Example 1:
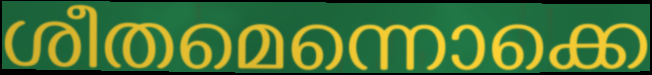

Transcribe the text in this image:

ശീതമെന്നൊക്കെ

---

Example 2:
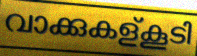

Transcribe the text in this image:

വാക്കുകള്കൂടി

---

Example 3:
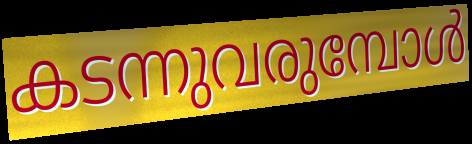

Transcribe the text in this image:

കടന്നുവരുമ്പോൾ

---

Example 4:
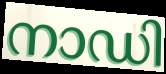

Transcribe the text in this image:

നാഡി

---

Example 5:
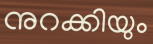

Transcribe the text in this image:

നുറക്കിയും